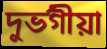
দুৰ্ভগীয়া